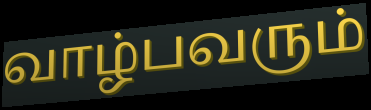
வாழ்பவரும்